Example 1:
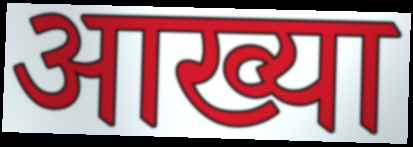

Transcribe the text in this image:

आख्या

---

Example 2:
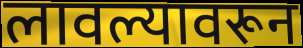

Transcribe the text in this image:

लावल्यावरून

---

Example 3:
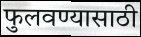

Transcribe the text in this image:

फुलवण्यासाठी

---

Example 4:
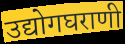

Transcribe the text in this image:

उद्योगघराणी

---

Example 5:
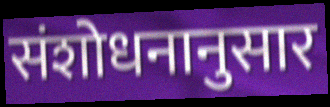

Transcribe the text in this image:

संशोधनानुसार